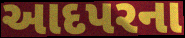
આદપરના